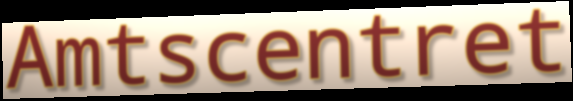
Amtscentret